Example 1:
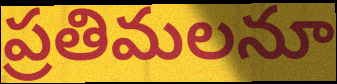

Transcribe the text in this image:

ప్రతిమలనూ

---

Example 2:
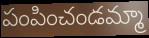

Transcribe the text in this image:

పంపించండమ్మా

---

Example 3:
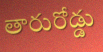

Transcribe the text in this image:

తారురోడ్డు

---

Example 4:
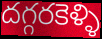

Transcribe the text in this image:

దగ్గరకెళ్ళి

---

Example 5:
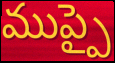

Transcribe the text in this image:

ముప్పై